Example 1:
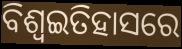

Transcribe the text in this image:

ବିଶ୍ଵଇତିହାସରେ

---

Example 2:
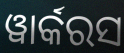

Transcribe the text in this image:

ୱାର୍କରସ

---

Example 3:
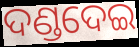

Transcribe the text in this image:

ଦଣ୍ଡଦେଇ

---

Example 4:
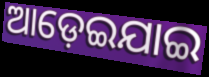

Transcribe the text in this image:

ଆଡ଼େଇଯାଇ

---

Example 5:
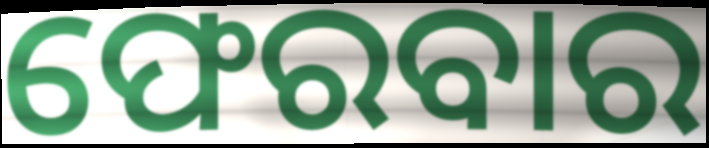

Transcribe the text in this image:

ଫେରବାର